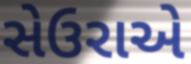
સેઉરાએ